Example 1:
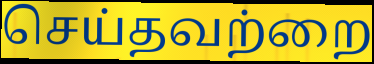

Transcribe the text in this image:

செய்தவற்றை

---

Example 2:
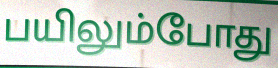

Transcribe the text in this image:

பயிலும்போது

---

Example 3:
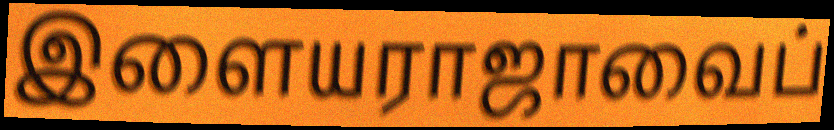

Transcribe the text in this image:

இளையராஜாவைப்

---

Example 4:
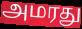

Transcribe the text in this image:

அமரது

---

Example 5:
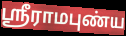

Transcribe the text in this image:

ஸ்ரீராமபுண்ய